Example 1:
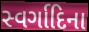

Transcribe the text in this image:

સ્વર્ગાદિના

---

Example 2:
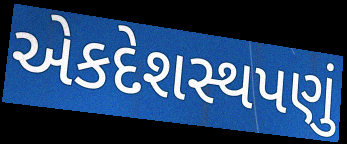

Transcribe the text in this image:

એકદેશસ્થપણું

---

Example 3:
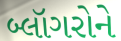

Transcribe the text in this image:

બ્લૉગરોને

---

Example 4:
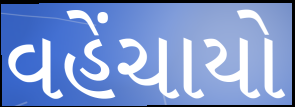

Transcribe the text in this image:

વહેંચાયો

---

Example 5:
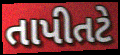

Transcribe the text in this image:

તાપીતટે